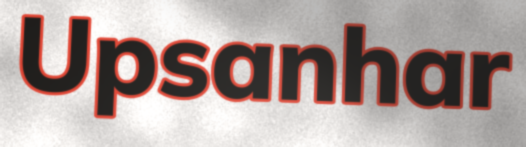
Upsanhar